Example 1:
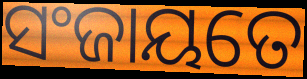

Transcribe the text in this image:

ସଂଜାୟତେ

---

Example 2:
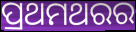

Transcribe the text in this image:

ପ୍ରଥମଥରର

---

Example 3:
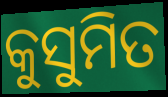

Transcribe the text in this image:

କୁସୁମିତ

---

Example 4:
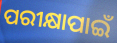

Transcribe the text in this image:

ପରୀକ୍ଷାପାଇଁ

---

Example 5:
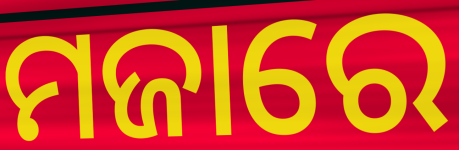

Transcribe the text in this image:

ମଜାରେ